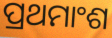
ପ୍ରଥମାଂଶ